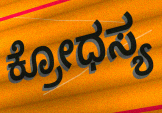
ಕ್ರೋಧಸ್ಯ